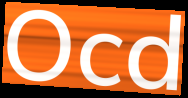
Ocd